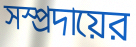
সস্প্রদায়ের